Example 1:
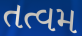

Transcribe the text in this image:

તત્વમ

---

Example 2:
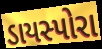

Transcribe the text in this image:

ડાયસ્પોરા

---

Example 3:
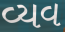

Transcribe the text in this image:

વ્યવ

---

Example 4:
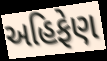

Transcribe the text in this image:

અહિફેણ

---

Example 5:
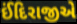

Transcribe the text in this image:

ઈંદિરાજીએ